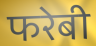
फरेबी